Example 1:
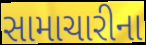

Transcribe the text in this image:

સામાચારીના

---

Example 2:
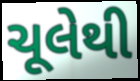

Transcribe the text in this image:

ચૂલેથી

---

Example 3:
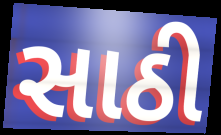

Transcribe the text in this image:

સાઠી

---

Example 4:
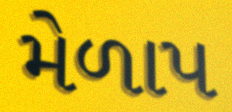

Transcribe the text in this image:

મેળાપ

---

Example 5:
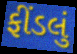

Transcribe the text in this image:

ફીંડલું